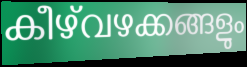
കീഴ്‌വഴക്കങ്ങളും